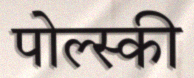
पोल्स्की